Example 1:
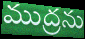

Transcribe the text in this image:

ముద్రను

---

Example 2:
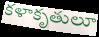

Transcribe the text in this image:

కళాకృతులూ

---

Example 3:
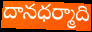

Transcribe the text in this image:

దానధర్మాది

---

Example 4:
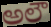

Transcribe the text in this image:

అలౌ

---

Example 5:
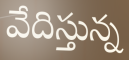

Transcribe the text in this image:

వేదిస్తున్న